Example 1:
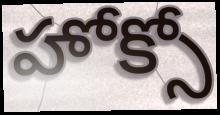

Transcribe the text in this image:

హోక్సో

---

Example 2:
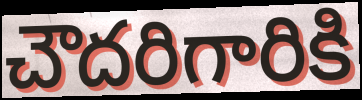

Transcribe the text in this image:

చౌదరిగారికి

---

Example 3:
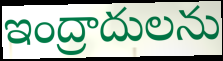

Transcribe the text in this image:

ఇంద్రాదులను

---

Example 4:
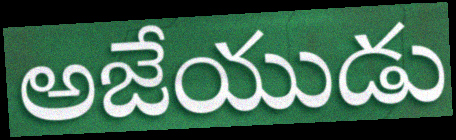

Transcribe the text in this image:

అజేయుడు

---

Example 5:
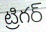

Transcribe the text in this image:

ట్రిగర్